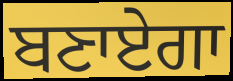
ਬਣਾਏਗਾ